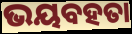
ଭୟବହତା